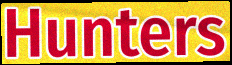
Hunters